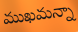
ముఖమన్నా